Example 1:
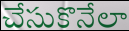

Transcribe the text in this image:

చేసుకొనేలా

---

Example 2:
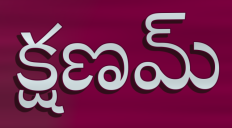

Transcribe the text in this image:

క్షణమ్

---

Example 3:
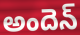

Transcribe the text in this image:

అందెన్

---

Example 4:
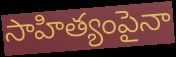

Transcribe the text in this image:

సాహిత్యంపైనా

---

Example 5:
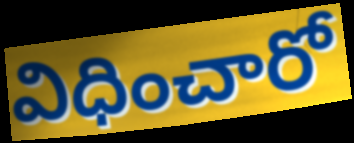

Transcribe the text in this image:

విధించారో